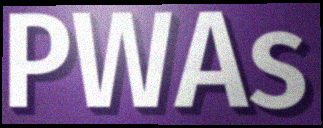
PWAs